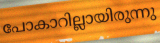
പോകാറില്ലായിരുന്നു